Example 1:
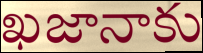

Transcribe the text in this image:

ఖజానాకు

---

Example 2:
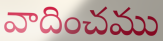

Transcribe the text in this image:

వాదించము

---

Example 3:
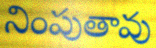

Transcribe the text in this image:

నింపుతావు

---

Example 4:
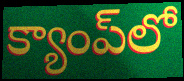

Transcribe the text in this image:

క్యాంప్‌లో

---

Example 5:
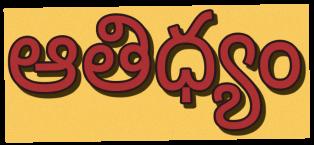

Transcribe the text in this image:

ఆతిధ్యం